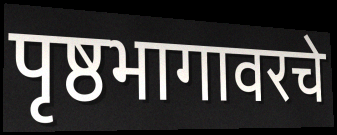
पृष्ठभागावरचे